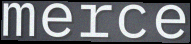
merce